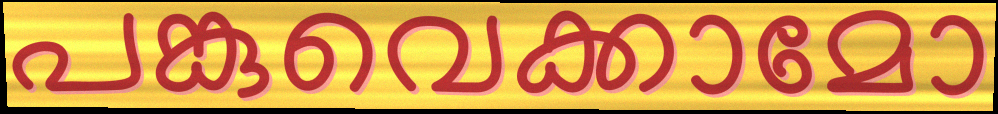
പങ്കുവെക്കാമോ